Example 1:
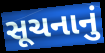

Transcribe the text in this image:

સૂચનાનું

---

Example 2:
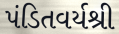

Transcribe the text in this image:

પંડિતવર્યશ્રી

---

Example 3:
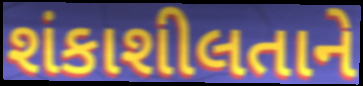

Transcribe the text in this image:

શંકાશીલતાને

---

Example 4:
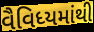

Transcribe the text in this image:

વૈવિધ્યમાંથી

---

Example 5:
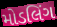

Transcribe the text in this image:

મોડલિંગ